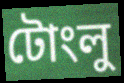
টোংলু